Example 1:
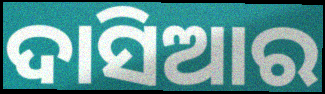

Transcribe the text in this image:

ଦାସିଆର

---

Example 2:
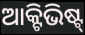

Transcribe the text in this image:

ଆକ୍ଟିଭିଷ୍ଟ୍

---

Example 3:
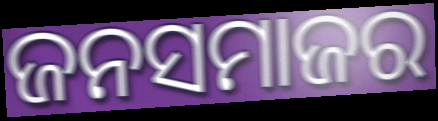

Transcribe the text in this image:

ଜନସମାଜର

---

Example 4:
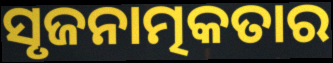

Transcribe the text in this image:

ସୃଜନାତ୍ମକତାର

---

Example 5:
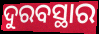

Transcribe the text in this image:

ଦୁରବସ୍ଥାର